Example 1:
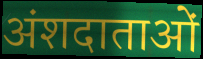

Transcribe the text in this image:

अंशदाताओं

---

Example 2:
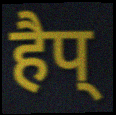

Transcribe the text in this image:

हैप्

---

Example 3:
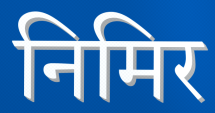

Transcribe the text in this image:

निमिर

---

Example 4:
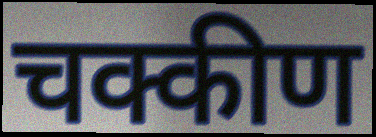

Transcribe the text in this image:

चक्कीण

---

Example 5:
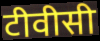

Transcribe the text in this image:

टीवीसी